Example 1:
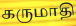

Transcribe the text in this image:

கருமாதி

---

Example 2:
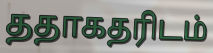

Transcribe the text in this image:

ததாகதரிடம்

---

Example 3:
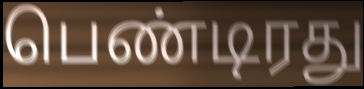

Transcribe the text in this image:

பெண்டிரது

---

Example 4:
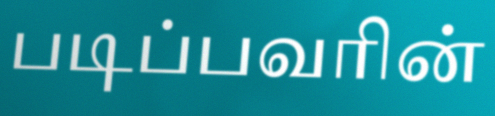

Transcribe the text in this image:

படிப்பவரின்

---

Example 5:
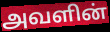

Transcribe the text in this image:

அவளின்